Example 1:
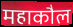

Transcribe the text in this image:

महाकौल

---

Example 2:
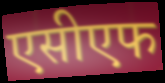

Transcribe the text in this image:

एसीएफ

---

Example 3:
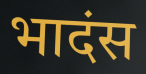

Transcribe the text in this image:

भादंस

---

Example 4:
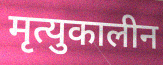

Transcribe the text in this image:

मृत्युकालीन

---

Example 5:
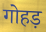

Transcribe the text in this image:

गोहड़